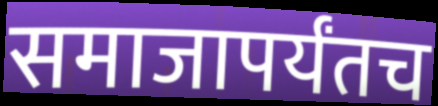
समाजापर्यंतच